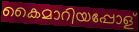
കൈമാറിയപ്പോള്